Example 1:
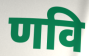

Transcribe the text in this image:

णवि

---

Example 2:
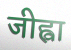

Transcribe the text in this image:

जीह्वा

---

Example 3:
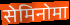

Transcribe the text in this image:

सेमिनोमा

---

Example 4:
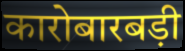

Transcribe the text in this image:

कारोबारबड़ी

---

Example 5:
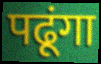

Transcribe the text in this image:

पढूंगा